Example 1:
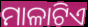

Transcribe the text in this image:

ମାଳାଟିଏ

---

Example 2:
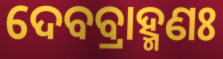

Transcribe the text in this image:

ଦେବବ୍ରାହ୍ମଣଃ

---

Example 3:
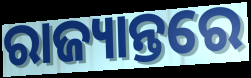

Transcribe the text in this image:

ରାଜ୍ୟାନ୍ତରେ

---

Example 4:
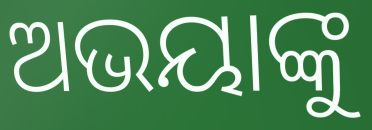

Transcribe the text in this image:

ଅଭୟାଙ୍କୁ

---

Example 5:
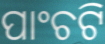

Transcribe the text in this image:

ପାଂଚଟି